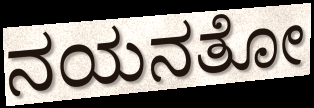
ನಯನತೋ